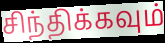
சிந்திக்கவும்